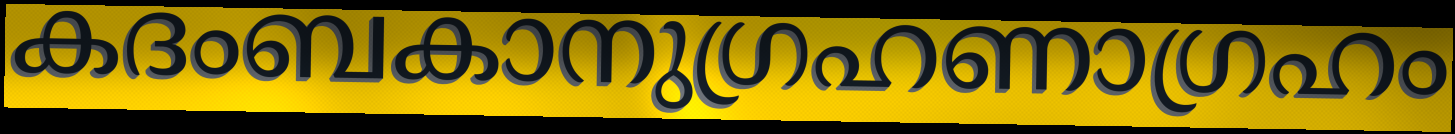
കദംബകാനുഗ്രഹണാഗ്രഹം